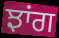
ਝਾਂਗ